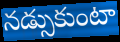
నడ్సుకుంటా